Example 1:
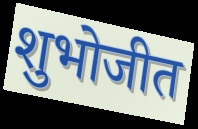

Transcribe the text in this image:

शुभोजीत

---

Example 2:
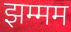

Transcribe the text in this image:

झम्मम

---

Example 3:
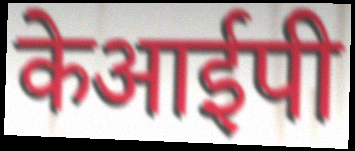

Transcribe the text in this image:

केआईपी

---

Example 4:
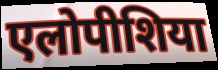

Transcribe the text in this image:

एलोपीशिया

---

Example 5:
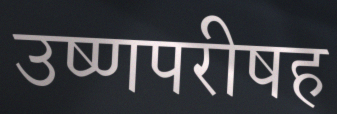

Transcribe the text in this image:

उष्णपरीषह